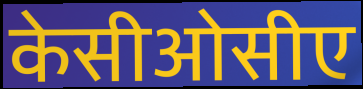
केसीओसीए